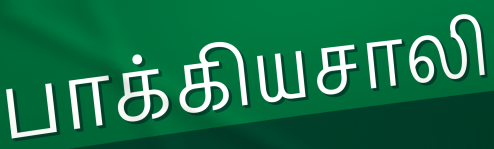
பாக்கியசாலி